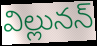
విల్లునన్